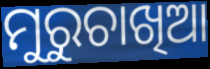
ମୁରୁଚାଖିଆ